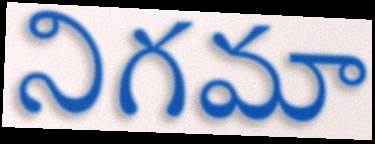
నిగమా